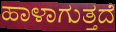
ಹಾಳಾಗುತ್ತದೆ